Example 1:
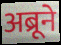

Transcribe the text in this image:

अब्रूने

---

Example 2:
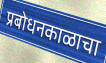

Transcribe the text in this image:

प्रबोधनकाळाचा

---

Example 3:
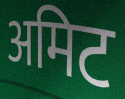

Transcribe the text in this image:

अमिट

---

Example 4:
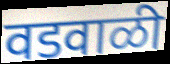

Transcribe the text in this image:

वडवाळी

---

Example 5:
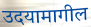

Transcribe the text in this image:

उदयामागील